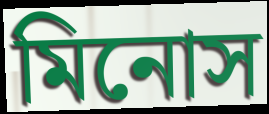
মিনোস